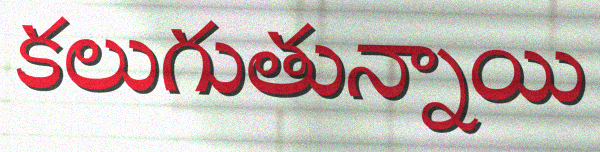
కలుగుతున్నాయి